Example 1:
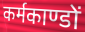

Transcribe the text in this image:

कर्मकाण्डों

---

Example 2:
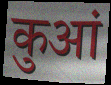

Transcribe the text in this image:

कुआं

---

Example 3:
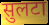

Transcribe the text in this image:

सुलटा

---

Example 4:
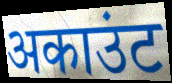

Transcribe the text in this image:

अकाउंट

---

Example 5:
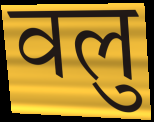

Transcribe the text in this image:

वलु